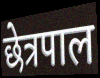
छेत्रपाल